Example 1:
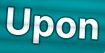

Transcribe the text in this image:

Upon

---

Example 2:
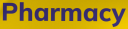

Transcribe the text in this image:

Pharmacy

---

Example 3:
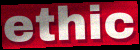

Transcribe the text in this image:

ethic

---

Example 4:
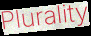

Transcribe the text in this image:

Plurality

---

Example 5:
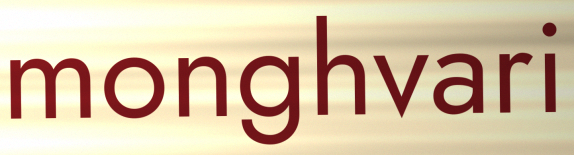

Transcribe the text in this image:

monghvari